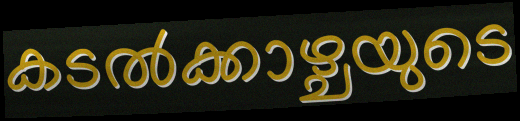
കടൽക്കാഴ്ചയുടെ